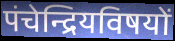
पंचेन्द्रियविषयों